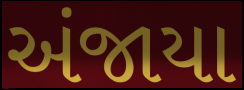
અંજાયા